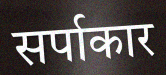
सर्पाकार